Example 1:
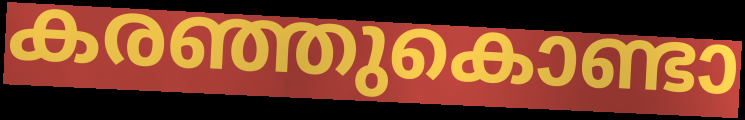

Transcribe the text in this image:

കരഞ്ഞുകൊണ്ടാ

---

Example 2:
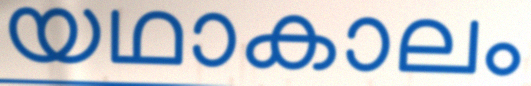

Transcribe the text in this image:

യഥാകാലം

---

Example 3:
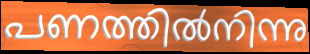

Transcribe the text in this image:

പണത്തിൽനിന്നു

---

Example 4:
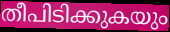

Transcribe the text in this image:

തീപിടിക്കുകയും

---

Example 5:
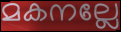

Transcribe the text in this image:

മകനല്ലേ